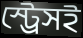
স্ট্রেসই